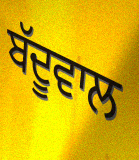
ਬੱਦੂਵਾਲ